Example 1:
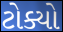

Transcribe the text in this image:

ટોક્યો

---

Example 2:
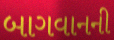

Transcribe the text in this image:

બાગવાનની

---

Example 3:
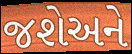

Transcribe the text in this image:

જશેઅને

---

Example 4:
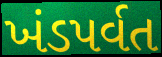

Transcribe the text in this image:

ખંડપર્વત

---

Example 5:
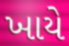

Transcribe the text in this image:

ખાયે